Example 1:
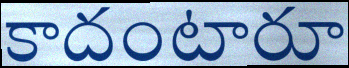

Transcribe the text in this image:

కాదంటారూ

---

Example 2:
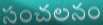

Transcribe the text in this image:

సంచలనం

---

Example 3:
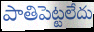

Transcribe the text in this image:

పాతిపెట్టలేదు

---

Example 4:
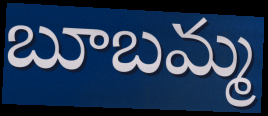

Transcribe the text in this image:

బూబమ్మ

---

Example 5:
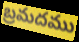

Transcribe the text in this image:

బ్రమదము